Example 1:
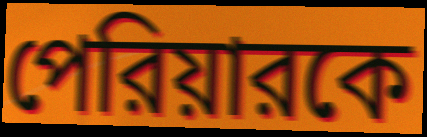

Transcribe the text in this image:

পেরিয়ারকে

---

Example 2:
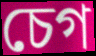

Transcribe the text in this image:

চেগ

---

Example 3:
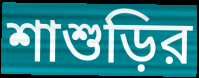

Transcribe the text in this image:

শাশুড়ির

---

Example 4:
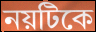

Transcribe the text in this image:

নয়টিকে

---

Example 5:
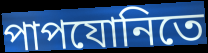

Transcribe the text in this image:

পাপযোনিতে